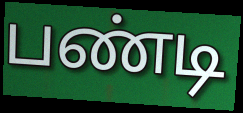
பண்டி